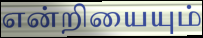
என்றியையும்